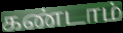
கண்டாம்